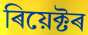
ৰিয়েক্টৰ